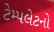
ટેમ્પલેટનો